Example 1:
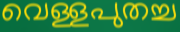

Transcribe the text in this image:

വെള്ളപുതച്ച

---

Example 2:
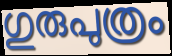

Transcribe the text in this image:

ഗുരുപുത്രം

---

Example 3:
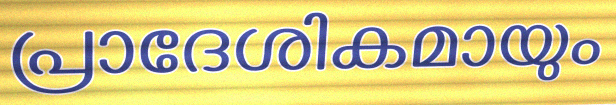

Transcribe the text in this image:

പ്രാദേശികമായും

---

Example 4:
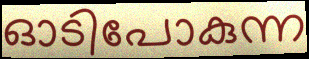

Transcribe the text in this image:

ഓടിപോകുന്ന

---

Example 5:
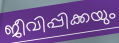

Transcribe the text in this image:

ജീവിപ്പിക്കയും